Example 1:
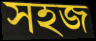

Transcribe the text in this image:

সহজ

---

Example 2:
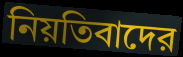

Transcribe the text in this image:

নিয়তিবাদের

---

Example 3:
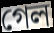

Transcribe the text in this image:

গেল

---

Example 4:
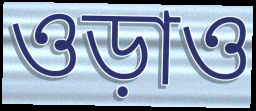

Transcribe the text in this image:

ওড়াও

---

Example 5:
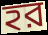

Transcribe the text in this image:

হর